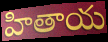
హితాయ